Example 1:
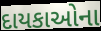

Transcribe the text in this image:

દાયકાઓના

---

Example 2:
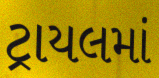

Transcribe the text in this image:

ટ્રાયલમાં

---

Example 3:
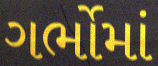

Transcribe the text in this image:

ગર્ભોમાં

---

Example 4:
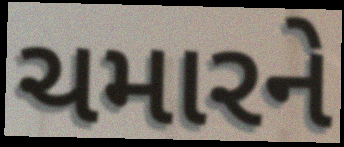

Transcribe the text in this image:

ચમારને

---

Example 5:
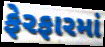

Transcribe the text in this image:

ફેરફારમાં